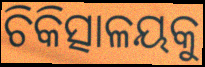
ଚିକିତ୍ସାଳୟକୁ